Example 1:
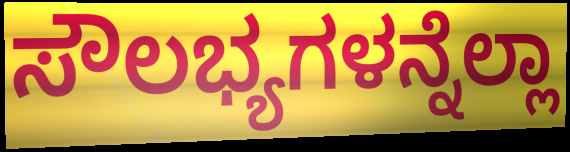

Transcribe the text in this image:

ಸೌಲಭ್ಯಗಳನ್ನೆಲ್ಲಾ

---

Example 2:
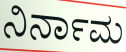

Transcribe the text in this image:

ನಿರ್ನಾಮ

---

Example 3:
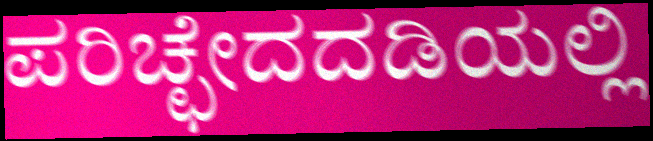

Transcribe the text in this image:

ಪರಿಚ್ಛೇದದಡಿಯಲ್ಲಿ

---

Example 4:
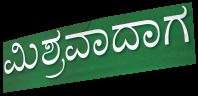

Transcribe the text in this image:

ಮಿಶ್ರವಾದಾಗ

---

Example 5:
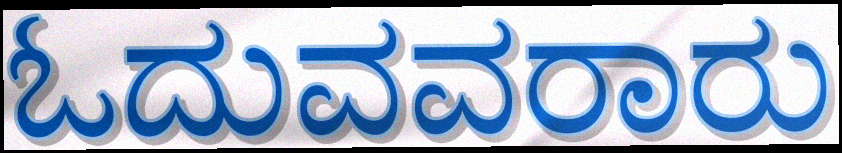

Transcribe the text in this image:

ಓದುವವರಾರು